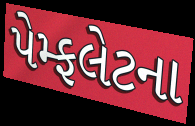
પેમ્ફલેટના